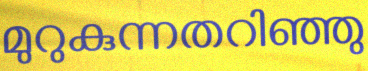
മുറുകുന്നതറിഞ്ഞു